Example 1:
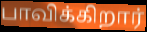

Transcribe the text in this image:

பாவிக்கிறார்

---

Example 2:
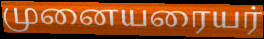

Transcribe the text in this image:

முனையரையர்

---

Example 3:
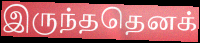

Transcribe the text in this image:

இருந்ததெனக்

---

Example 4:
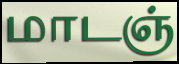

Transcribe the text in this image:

மாடஞ்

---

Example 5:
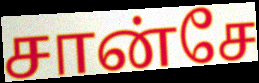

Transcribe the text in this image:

சான்சே